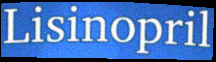
Lisinopril